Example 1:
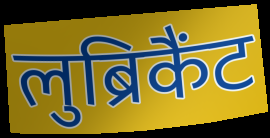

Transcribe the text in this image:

लुब्रिकैंट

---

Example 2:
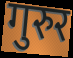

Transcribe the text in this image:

गुरुर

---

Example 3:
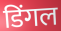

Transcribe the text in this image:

डिंगल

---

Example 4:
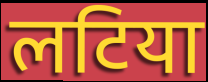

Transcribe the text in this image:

लटिया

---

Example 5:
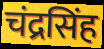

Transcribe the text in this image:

चंद्रसिंह